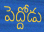
పెద్దోడు